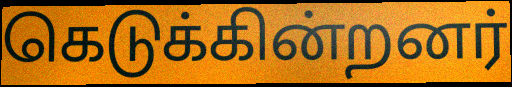
கெடுக்கின்றனர்